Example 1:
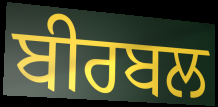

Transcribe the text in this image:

ਬੀਰਬਲ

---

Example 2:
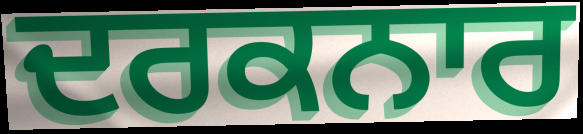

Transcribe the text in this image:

ਦਰਕਨਾਰ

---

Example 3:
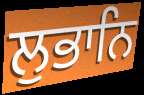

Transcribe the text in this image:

ਲੁਭਾਨਿ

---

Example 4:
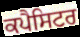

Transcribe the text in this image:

ਕਪੈਸਿਟਰ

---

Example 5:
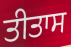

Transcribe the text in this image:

ਤੀਤਾਸ